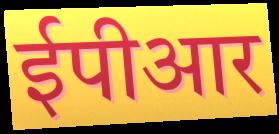
ईपीआर